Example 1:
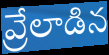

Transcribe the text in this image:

వ్రేలాడిన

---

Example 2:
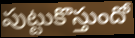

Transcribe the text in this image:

పుట్టుకొస్తుందో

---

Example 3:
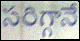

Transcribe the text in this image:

సరిగ్గానే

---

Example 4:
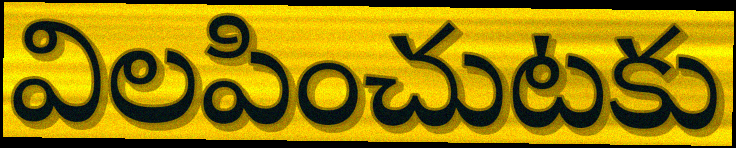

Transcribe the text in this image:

విలపించుటకు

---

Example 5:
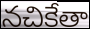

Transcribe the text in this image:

నచికేతా